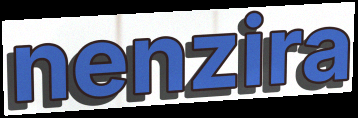
nenzira